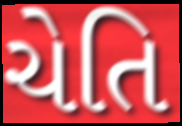
ચેતિ